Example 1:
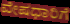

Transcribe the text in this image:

ವೇಷಧಾರಿಗೆ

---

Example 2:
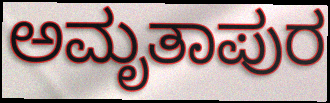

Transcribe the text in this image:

ಅಮೃತಾಪುರ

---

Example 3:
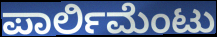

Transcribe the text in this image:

ಪಾರ್ಲಿಮೆಂಟು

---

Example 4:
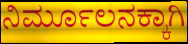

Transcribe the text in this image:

ನಿರ್ಮೂಲನಕ್ಕಾಗಿ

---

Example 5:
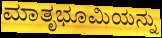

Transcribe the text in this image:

ಮಾತೃಭೂಮಿಯನ್ನು